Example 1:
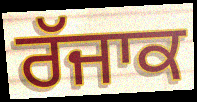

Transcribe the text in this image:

ਰੱਜਾਕ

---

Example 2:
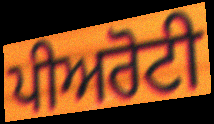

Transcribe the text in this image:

ਪੀਅਰੋਟੀ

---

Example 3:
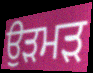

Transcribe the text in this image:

ਉੜਮੜ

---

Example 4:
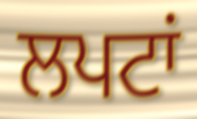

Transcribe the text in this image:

ਲਪਟਾਂ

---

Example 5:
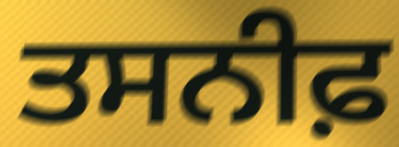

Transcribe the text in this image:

ਤਸਨੀਫ਼